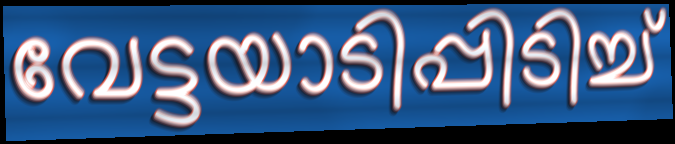
വേട്ടയാടിപ്പിടിച്ച്